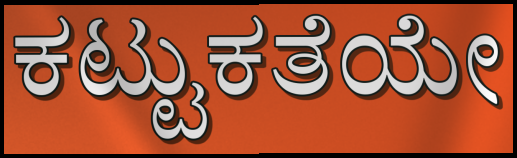
ಕಟ್ಟುಕತೆಯೇ